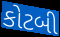
કોટબી